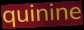
quinine